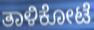
ತಾಳಿಕೋಟೆ